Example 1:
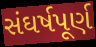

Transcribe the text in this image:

સંઘર્ષપૂર્ણ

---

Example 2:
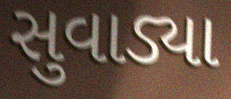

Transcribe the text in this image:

સુવાડ્યા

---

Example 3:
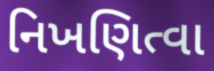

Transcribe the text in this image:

નિખણિત્વા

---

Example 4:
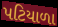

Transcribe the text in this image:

પટિયાળા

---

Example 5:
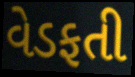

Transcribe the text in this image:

વેડફતી